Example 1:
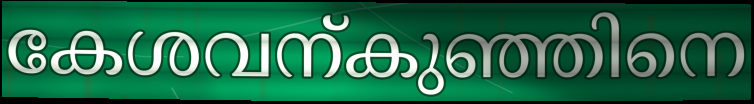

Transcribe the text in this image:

കേശവന്കുഞ്ഞിനെ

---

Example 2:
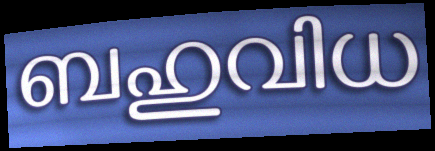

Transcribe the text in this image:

ബഹുവിധ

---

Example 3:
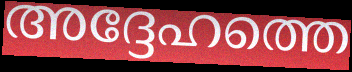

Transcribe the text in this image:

അദ്ദേഹത്തെ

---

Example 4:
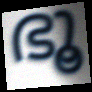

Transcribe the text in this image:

ഭൂ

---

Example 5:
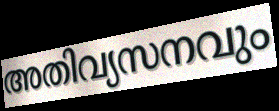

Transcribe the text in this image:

അതിവ്യസനവും